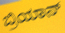
ಬ್ರಿಯಾನ್